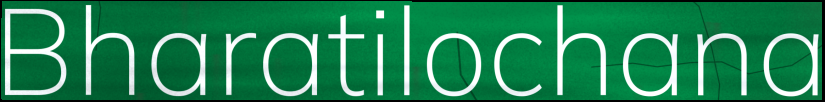
Bharatilochana